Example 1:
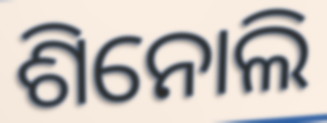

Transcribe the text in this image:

ଶିନୋଲି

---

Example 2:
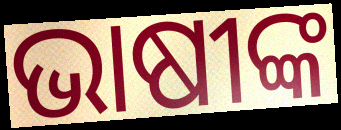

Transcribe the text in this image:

ଭାଷୀଙ୍କ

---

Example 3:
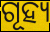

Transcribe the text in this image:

ଗୂହ୍ୟ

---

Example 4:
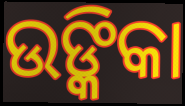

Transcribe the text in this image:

ଉଙ୍କିକା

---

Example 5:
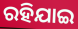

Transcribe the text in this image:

ରହିଯାଇ